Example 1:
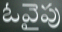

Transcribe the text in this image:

ఓవైపు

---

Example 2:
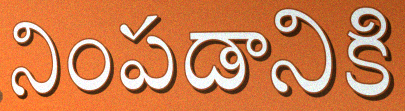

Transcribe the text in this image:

నింపడానికి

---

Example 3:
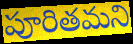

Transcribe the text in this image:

పూరితమని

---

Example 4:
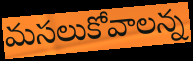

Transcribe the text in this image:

మసలుకోవాలన్న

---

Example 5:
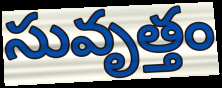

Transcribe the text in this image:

సువృత్తం